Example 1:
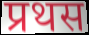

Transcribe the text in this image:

प्रथस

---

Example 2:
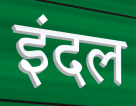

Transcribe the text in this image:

इंदल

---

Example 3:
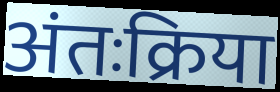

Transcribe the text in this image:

अंतःक्रिया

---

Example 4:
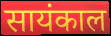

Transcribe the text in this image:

सायंकाल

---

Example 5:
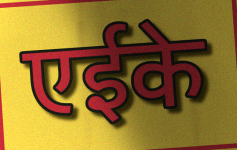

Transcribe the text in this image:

एईके